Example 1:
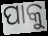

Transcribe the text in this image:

ପାକୁ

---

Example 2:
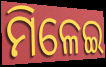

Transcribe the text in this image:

ମିଳେଇ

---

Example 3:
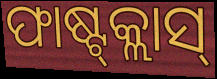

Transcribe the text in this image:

ଫାଷ୍ଟ୍‍କ୍ଲାସ୍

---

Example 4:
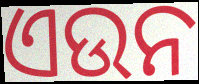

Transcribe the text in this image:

ଏଉନ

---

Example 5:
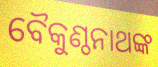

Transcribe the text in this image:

ବୈକୁଣ୍ଠନାଥଙ୍କ